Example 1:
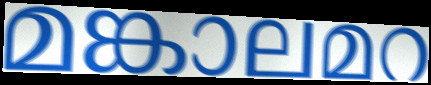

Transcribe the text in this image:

മങ്കാലമറ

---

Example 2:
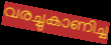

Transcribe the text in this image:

വരച്ചുകാണിച്ച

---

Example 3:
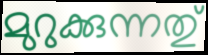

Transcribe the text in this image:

മുറുക്കുന്നതു്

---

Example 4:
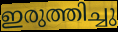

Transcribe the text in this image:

ഇരുത്തിച്ചു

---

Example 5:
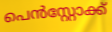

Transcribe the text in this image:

പെൻസ്റ്റോക്ക്